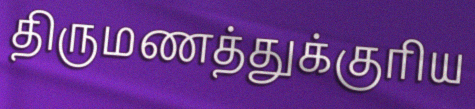
திருமணத்துக்குரிய